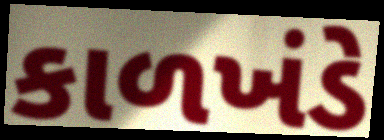
કાળખંડે